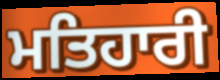
ਮਤਿਹਾਰੀ